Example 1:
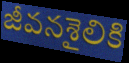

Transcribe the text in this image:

జీవనశైలికి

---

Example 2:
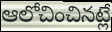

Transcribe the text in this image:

ఆలోచించినట్లే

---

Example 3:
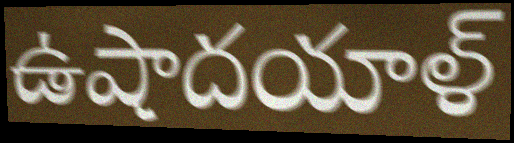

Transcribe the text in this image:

ఉషాదయాళ్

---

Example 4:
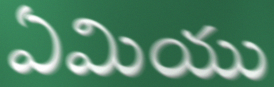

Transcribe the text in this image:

ఏమియు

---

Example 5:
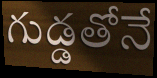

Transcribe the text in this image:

గుడ్డతోనే